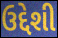
ઉદ્દેશી